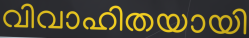
വിവാഹിതയായി